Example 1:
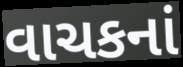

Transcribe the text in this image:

વાચકનાં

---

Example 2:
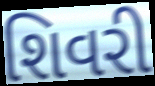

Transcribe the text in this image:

શિવરી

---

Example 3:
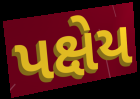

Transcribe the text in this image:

પક્ષેય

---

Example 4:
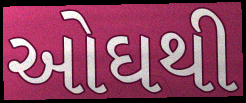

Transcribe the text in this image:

ઓઘથી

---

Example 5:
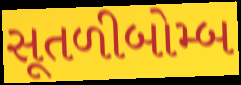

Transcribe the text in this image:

સૂતળીબોમ્બ